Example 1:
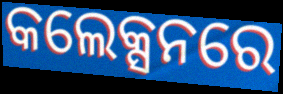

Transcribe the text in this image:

କଲେକ୍ସନରେ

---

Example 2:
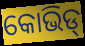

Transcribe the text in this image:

କୋଭିଡ୍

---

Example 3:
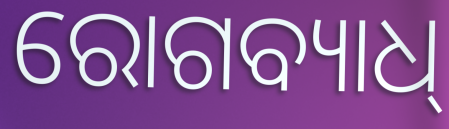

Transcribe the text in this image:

ରୋଗବ୍ୟାଧ୍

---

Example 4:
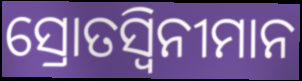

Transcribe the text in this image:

ସ୍ରୋତସ୍ୱିନୀମାନ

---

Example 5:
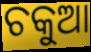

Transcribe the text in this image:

ଚକୁଆ